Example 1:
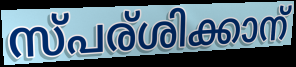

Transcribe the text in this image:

സ്പര്ശിക്കാന്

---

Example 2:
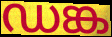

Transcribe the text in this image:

ഡങ്ക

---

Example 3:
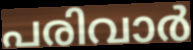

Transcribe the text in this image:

പരിവാർ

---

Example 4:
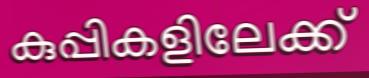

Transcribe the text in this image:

കുപ്പികളിലേക്ക്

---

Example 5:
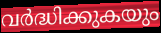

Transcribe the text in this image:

വർദ്ധിക്കുകയും